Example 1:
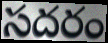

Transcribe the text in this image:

సదరం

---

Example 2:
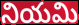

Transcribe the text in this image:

నియమి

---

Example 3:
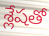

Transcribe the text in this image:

శ్లేషతో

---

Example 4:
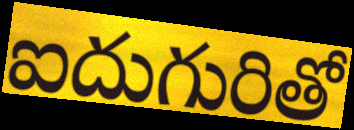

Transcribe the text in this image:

ఐదుగురితో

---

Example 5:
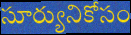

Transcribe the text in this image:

సూర్యునికోసం